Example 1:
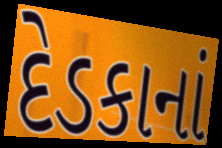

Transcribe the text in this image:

દેડકાનાં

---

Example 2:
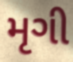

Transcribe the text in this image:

મૃગી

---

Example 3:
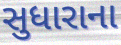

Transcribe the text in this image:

સુધારાના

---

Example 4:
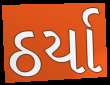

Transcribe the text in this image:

ઠર્યા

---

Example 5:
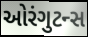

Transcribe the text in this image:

ઓરંગુટન્સ